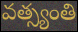
వత్స్యంతి